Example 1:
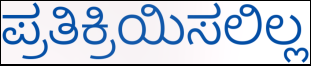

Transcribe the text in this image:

ಪ್ರತಿಕ್ರಿಯಿಸಲಿಲ್ಲ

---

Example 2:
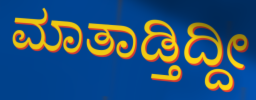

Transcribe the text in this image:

ಮಾತಾಡ್ತಿದ್ದೀ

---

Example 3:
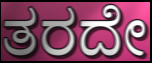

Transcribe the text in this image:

ತರದೇ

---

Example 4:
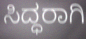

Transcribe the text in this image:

ಸಿದ್ಧರಾಗಿ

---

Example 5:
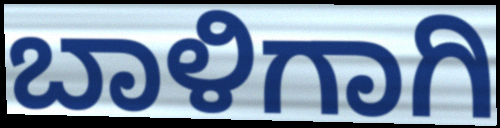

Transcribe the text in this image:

ಬಾಳಿಗಾಗಿ